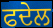
ਫਦੇਲ